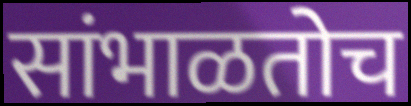
सांभाळतोच